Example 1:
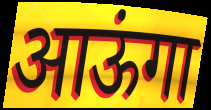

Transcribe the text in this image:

आऊंगा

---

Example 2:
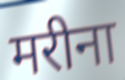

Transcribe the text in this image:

मरीना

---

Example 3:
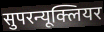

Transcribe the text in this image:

सुपरन्यूक्लियर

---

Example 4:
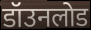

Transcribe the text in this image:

डॉउनलोड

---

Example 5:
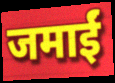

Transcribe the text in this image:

जमाईं